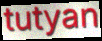
tutyan